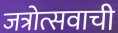
जत्रोत्सवाची